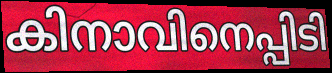
കിനാവിനെപ്പിടി